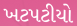
ખટપટીયો